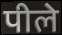
पीले